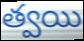
త్వయి